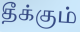
தீக்கும்